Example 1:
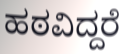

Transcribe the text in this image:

ಹಠವಿದ್ದರೆ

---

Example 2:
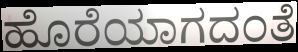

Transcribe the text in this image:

ಹೊರೆಯಾಗದಂತೆ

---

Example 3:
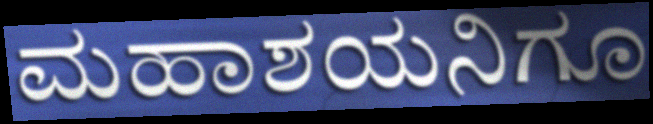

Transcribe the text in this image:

ಮಹಾಶಯನಿಗೂ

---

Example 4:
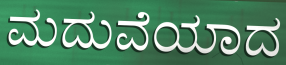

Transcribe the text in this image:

ಮದುವೆಯಾದ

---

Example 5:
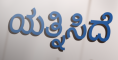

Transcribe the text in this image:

ಯತ್ನಿಸಿದೆ